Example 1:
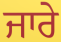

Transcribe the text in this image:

ਜਾਰੇ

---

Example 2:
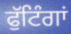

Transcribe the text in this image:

ਫੁੱਟਿੰਗਾਂ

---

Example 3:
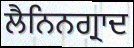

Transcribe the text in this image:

ਲੈਨਿਨਗ੍ਰਾਦ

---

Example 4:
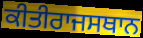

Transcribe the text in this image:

ਕੀਤੀਰਾਜਸਥਾਨ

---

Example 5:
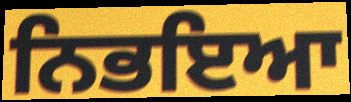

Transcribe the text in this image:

ਨਿਭਇਆ